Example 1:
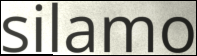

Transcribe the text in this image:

silamo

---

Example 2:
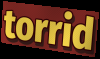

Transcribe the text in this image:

torrid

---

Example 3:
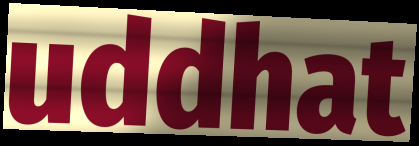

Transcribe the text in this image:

uddhat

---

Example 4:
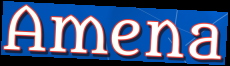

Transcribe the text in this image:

Amena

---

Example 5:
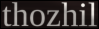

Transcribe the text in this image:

thozhil